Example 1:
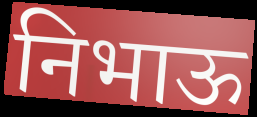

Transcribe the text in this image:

निभाऊ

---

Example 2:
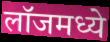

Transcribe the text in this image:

लॉजमध्ये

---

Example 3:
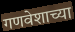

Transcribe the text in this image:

गणवेशाच्या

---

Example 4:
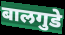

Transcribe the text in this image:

बालगुडे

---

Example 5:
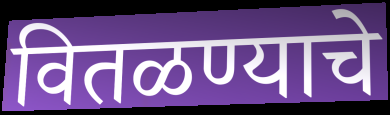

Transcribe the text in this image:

वितळण्याचे